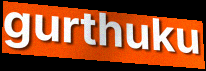
gurthuku